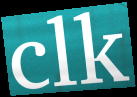
clk